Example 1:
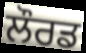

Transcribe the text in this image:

ਲੌਰਡ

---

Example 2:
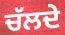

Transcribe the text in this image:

ਚੱਲਦੇ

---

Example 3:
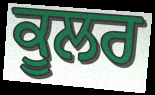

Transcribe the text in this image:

ਕੂਲਰ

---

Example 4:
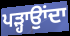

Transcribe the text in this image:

ਪੜ੍ਹਾਉਾਂਦਾ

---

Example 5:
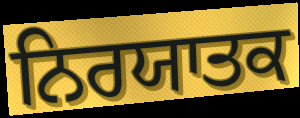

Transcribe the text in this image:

ਨਿਰਯਾਤਕ